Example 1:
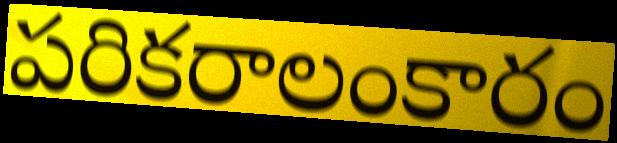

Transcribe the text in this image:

పరికరాలంకారం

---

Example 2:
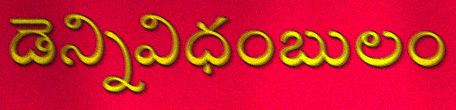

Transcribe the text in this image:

డెన్నివిధంబులం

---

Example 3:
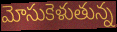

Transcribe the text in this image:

మోసుకెళుతున్న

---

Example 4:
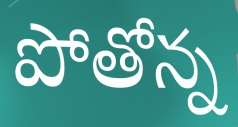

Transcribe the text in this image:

పోతోన్న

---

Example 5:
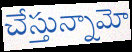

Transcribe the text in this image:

చేస్తున్నామో